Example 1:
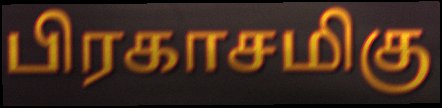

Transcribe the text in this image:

பிரகாசமிகு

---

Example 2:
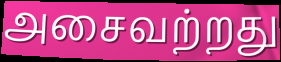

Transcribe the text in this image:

அசைவற்றது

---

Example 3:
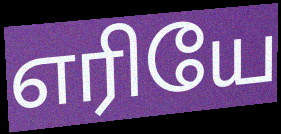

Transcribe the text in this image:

எரியே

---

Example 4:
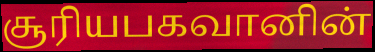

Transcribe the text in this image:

சூரியபகவானின்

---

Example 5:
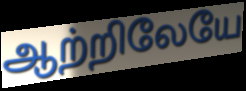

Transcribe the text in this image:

ஆற்றிலேயே